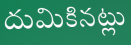
దుమికినట్లు